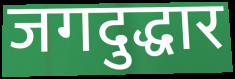
जगदुद्धार